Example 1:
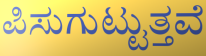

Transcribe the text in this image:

ಪಿಸುಗುಟ್ಟುತ್ತವೆ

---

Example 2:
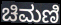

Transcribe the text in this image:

ಚಿಮಣಿ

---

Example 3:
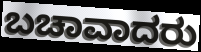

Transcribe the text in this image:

ಬಚಾವಾದರು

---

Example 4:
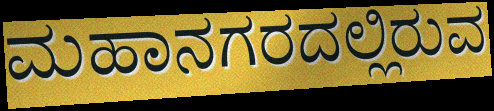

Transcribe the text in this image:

ಮಹಾನಗರದಲ್ಲಿರುವ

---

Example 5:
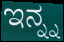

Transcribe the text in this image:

ಇನ್ನ್ನ